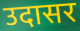
उदासर